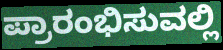
ಪ್ರಾರಂಭಿಸುವಲ್ಲಿ